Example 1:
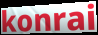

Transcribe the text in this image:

konrai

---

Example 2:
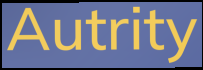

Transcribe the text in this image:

Autrity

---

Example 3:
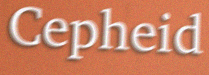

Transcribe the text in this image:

Cepheid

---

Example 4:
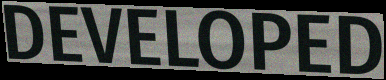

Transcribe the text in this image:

DEVELOPED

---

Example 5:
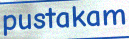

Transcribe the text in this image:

pustakam